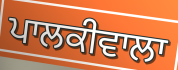
ਪਾਲਕੀਵਾਲਾ